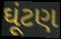
ઘૂંટણ